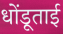
धोंडूताई